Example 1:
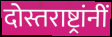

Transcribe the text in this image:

दोस्तराष्ट्रांनीं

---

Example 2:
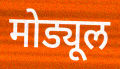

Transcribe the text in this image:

मोड्यूल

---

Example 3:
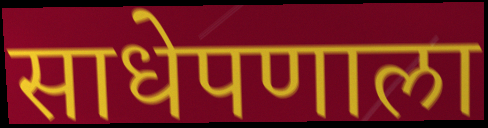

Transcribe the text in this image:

साधेपणाला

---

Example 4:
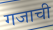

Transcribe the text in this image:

गजाची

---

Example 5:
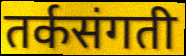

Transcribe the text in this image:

तर्कसंगती